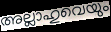
അല്ലാഹുവെയും